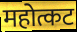
महोत्कट